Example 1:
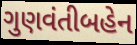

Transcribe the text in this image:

ગુણવંતીબહેન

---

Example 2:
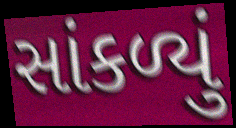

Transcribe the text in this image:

સાંકળ્યું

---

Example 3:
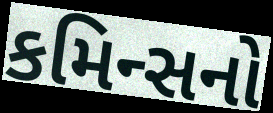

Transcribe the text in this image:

કમિન્સનો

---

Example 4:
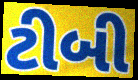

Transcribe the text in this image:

ટીબી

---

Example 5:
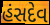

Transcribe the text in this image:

હંસદેવ